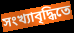
সংখ্যাবৃদ্ধিতে